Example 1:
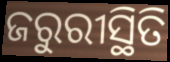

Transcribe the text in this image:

ଜରୁରୀସ୍ଥିତି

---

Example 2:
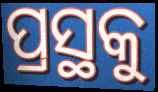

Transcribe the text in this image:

ପ୍ରସ୍ଥକୁ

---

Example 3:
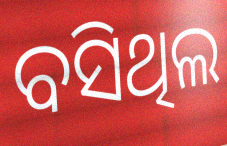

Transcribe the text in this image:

ବସିଥିଲ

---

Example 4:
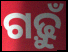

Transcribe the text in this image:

ଗଢ଼ୁଁ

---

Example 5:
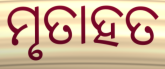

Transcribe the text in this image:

ମୃତାହତ